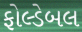
ફોલ્ડેબલ